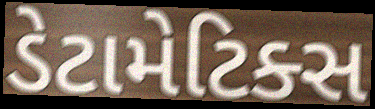
ડેટામેટિક્સ